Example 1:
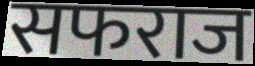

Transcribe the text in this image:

सफराज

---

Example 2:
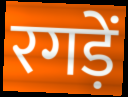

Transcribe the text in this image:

रगड़ें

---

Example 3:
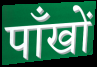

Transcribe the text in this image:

पाँखों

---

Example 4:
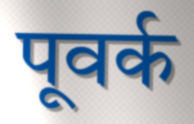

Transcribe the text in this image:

पूवर्क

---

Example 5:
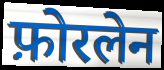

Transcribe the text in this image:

फ़ोरलेन